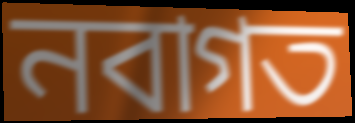
নবাগত